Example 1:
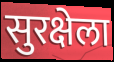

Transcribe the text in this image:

सुरक्षेला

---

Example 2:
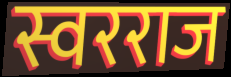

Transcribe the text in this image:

स्वरराज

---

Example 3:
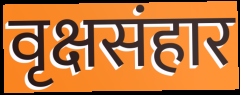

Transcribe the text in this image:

वृक्षसंहार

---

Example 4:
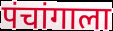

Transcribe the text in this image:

पंचांगाला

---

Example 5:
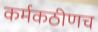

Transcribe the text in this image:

कर्मकठीणच